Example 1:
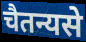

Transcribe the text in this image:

चैतन्यसे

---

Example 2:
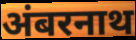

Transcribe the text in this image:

अंबरनाथ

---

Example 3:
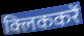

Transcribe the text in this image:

क्लिककरें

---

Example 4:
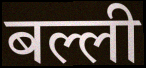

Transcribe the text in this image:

बल्ली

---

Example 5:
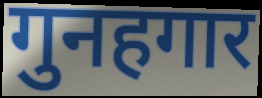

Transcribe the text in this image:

गुनहगार